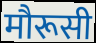
मौरूसी